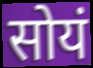
सोयं